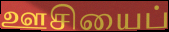
ஊசியைப்